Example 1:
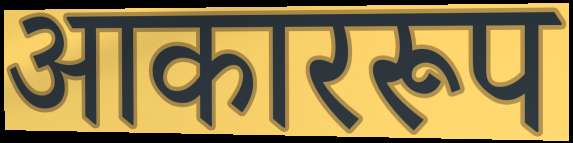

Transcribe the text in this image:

आकाररूप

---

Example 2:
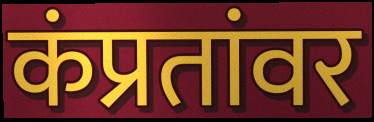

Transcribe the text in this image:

कंप्रतांवर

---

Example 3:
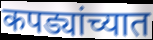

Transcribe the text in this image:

कपड्यांच्यात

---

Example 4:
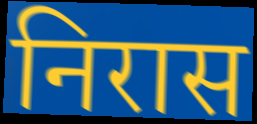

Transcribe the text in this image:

निरास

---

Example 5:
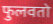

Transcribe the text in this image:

फुलवतो